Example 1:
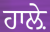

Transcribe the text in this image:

ਹਾਲ਼ੇ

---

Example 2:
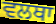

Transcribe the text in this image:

ਵਲਥਾ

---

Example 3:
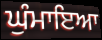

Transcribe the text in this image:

ਘੁੰਮਾਇਆ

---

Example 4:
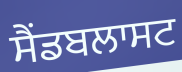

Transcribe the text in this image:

ਸੈਂਡਬਲਾਸਟ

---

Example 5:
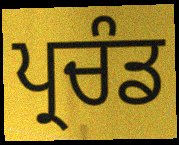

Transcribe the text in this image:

ਪ੍ਰਚੰਡ